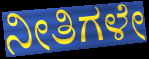
ನೀತಿಗಳೇ